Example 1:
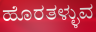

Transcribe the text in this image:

ಹೊರತಳ್ಳುವ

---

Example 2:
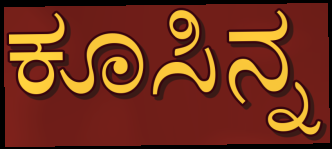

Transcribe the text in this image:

ಕೂಸಿನ್ನ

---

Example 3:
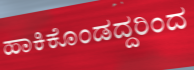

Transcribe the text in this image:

ಹಾಕಿಕೊಂಡದ್ದರಿಂದ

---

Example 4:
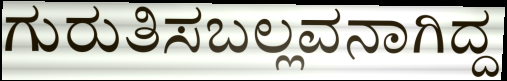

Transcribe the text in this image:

ಗುರುತಿಸಬಲ್ಲವನಾಗಿದ್ದ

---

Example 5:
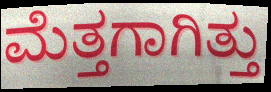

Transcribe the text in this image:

ಮೆತ್ತಗಾಗಿತ್ತು